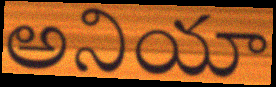
అనియా